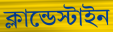
ক্লান্ডেস্টাইন